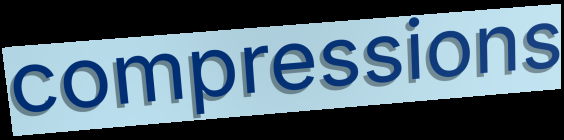
compressions